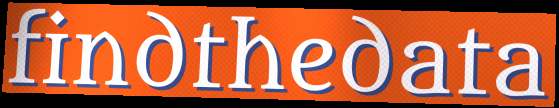
findthedata